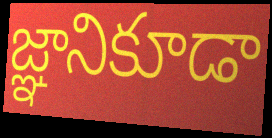
జ్ఞానికూడా